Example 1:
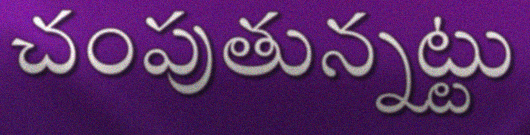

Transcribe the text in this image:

చంపుతున్నట్టు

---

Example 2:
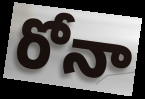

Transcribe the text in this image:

రోనా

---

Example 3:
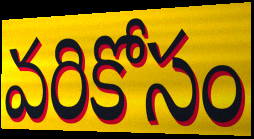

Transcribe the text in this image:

వరికోసం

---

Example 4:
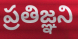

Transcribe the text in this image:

ప్రతిజ్ఞని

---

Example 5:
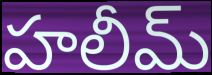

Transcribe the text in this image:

హలీమ్